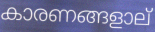
കാരണങ്ങളാല്